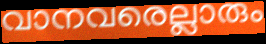
വാനവരെല്ലാരും